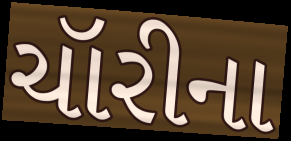
ચૉરીના